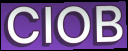
CIOB